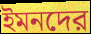
ইমনদের